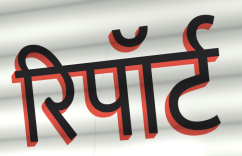
रिपॉर्ट